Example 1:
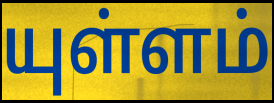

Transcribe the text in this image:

யுள்ளம்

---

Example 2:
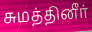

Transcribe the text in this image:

சுமத்தினீர்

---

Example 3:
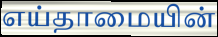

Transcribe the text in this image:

எய்தாமையின்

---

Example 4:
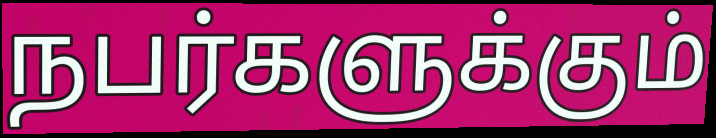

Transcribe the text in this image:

நபர்களுக்கும்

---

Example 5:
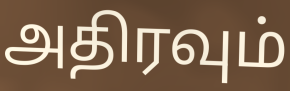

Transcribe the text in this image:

அதிரவும்